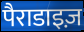
पैराडाइज़